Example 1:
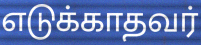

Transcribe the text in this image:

எடுக்காதவர்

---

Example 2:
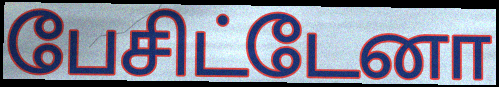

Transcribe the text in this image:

பேசிட்டேனா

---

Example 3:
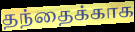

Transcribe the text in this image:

தந்தைக்காக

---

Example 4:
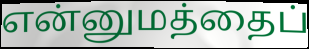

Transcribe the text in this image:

என்னுமத்தைப்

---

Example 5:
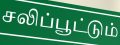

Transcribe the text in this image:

சலிப்பூட்டும்